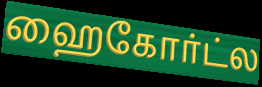
ஹைகோர்ட்ல